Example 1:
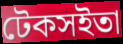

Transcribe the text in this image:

টেকসইতা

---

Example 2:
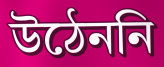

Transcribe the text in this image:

উঠেননি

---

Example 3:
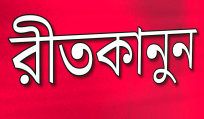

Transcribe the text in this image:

রীতকানুন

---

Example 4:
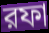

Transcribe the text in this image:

রফা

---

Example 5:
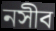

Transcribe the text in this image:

নসীব